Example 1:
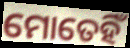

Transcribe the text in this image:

ମୋତେହିଁ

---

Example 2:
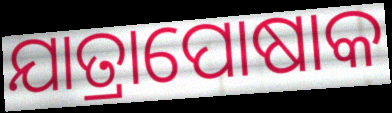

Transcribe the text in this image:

ଯାତ୍ରାପୋଷାକ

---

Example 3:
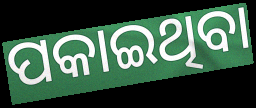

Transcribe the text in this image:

ପକାଇଥିବା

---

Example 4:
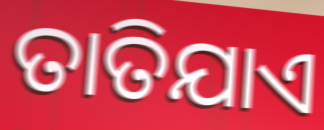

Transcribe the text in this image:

ତାତିଯାଏ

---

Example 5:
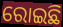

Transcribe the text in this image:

ରୋଇଛି